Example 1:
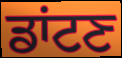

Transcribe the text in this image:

ਡਾਂਟਣ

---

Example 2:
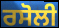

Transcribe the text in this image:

ਰਸੋਲੀ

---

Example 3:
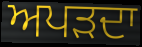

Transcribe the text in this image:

ਅਪੜਦਾ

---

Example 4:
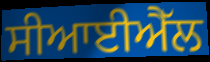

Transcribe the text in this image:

ਸੀਆਈਐੱਲ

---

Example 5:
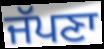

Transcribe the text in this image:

ਜੱਪਣਾ